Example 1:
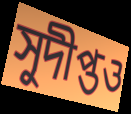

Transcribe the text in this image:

সুদীপ্তও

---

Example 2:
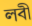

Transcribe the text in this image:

লবী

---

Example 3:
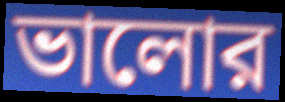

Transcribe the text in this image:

ভালোর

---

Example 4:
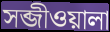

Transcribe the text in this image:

সব্জীওয়ালা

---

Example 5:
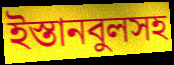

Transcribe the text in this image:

ইস্তানবুলসহ